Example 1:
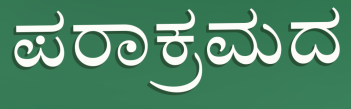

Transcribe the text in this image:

ಪರಾಕ್ರಮದ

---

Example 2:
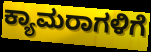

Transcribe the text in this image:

ಕ್ಯಾಮರಾಗಳಿಗೆ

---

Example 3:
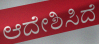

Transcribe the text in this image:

ಆದೇಶಿಸಿದೆ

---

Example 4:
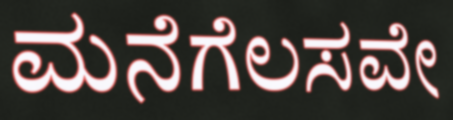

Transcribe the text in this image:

ಮನೆಗೆಲಸವೇ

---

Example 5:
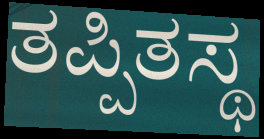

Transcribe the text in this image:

ತಪ್ಪಿತಸ್ಥ